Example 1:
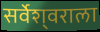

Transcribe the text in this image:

सर्वेश्वराला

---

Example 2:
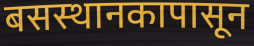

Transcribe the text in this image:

बसस्थानकापासून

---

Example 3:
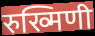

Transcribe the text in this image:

रुख्मिणी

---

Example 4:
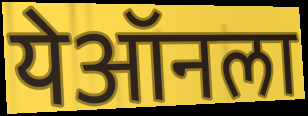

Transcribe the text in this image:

येऑनला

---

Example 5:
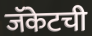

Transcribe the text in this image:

जॅकेटची